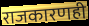
राजकारणही